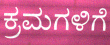
ಕ್ರಮಗಳಿಗೆ